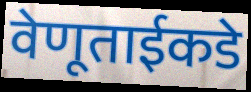
वेणूताईकडे